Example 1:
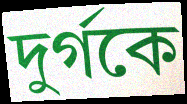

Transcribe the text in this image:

দুর্গকে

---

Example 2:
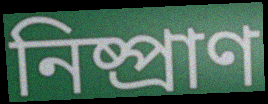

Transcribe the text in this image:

নিষ্প্রাণ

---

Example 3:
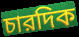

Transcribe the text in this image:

চারদিক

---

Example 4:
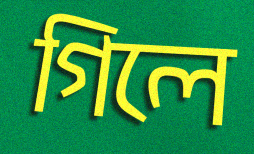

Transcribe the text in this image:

গিলে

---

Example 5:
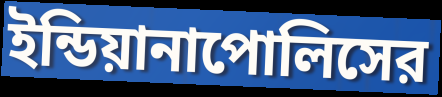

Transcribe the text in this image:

ইন্ডিয়ানাপোলিসের